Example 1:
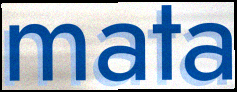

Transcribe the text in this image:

mata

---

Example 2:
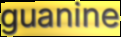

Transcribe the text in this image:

guanine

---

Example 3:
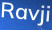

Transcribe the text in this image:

Ravji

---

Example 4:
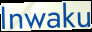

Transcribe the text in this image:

Inwaku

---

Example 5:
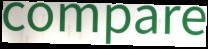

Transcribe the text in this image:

compare